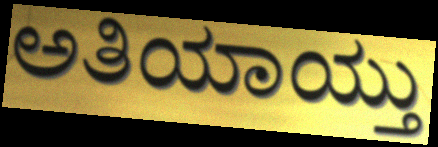
ಅತಿಯಾಯ್ತು